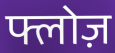
फ्लोज़